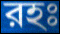
রহঃ